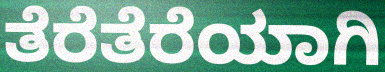
ತೆರೆತೆರೆಯಾಗಿ